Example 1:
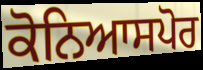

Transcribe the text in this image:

ਕੋਨਿਆਸਪੋਰ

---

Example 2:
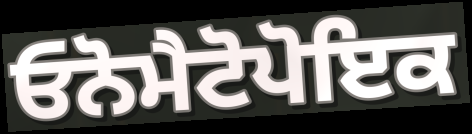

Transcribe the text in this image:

ਓਨੋਮੈਟੋਪੋਇਕ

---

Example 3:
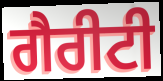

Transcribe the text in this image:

ਗੈਰੀਟੀ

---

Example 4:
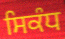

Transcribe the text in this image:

ਸਿਕੰਧ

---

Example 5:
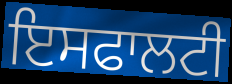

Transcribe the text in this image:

ਇਸਫਾਲਟੀ